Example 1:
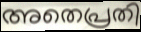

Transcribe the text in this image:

അതെപ്രതി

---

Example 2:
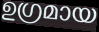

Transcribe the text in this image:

ഉഗ്രമായ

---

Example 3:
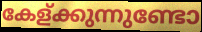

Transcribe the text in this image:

കേള്ക്കുന്നുണ്ടോ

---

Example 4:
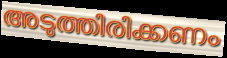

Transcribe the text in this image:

അടുത്തിരിക്കണം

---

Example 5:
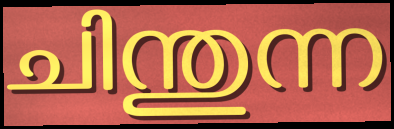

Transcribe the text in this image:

ചിന്തുന്ന